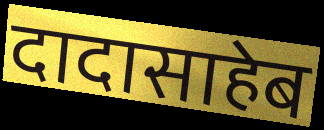
दादासाहेब